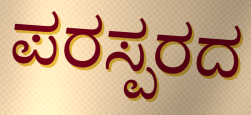
ಪರಸ್ಪರದ